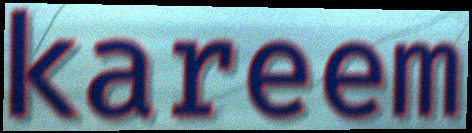
kareem